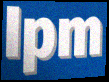
Ipm